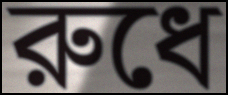
রুধে